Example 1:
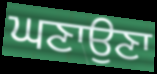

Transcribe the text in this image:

ਘਣਾਉਣਾ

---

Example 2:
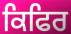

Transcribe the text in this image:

ਕਿਫਿਰ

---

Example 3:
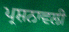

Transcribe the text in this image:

ਪ੍ਰਸ਼ਨਾਵਲੀ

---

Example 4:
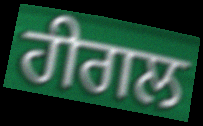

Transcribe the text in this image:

ਹੀਗਲ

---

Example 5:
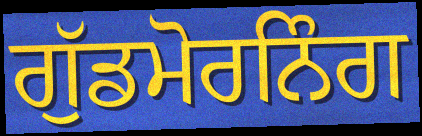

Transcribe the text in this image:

ਗੁੱਡਮੋਰਨਿੰਗ